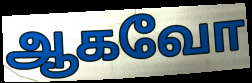
ஆகவோ